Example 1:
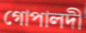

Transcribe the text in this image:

গোপালদী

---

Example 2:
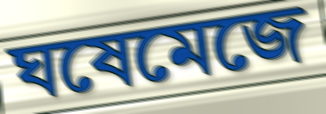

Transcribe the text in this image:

ঘষেমেজে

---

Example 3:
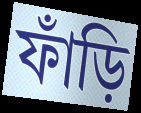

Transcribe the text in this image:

ফাঁড়ি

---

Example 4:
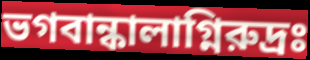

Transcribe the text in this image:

ভগবান্কালাগ্নিরুদ্রঃ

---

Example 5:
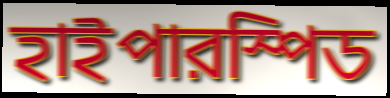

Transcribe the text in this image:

হাইপারস্পিড